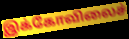
இக்கோவிலைச்